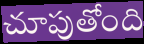
చూపుతోంది